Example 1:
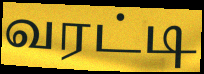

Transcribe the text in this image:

வரட்டி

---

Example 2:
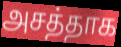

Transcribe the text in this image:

அசத்தாக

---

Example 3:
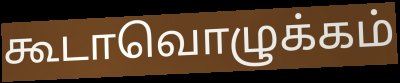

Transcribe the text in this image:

கூடாவொழுக்கம்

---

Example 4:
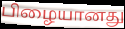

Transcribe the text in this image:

பிழையானது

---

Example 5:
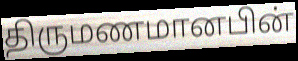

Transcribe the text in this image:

திருமணமானபின்